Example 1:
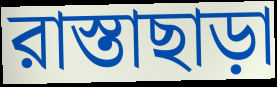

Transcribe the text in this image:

রাস্তাছাড়া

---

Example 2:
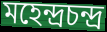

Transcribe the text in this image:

মহেন্দ্রচন্দ্র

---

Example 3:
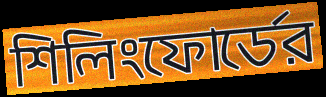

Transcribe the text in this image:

শিলিংফোর্ডের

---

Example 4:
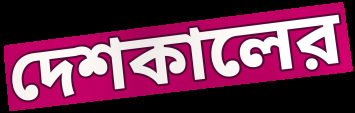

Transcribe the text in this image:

দেশকালের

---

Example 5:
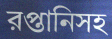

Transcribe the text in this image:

রপ্তানিসহ